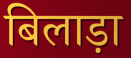
बिलाड़ा